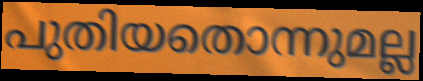
പുതിയതൊന്നുമല്ല